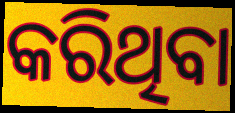
କରିଥିବା